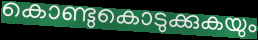
കൊണ്ടുകൊടുക്കുകയും